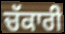
ਚੱਕਾਰੀ